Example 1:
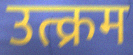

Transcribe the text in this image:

उत्क्रम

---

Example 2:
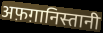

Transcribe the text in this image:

अफ़ग़ानिस्तानी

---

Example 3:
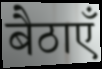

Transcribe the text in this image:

बैठाएँ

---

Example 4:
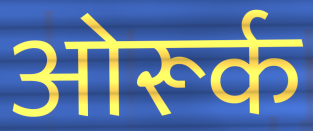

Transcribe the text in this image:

ओरूर्क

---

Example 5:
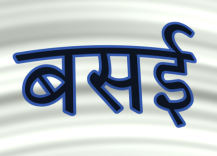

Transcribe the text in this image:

बसई